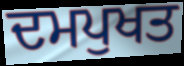
ਦਮਪੁਖਤ